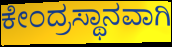
ಕೇಂದ್ರಸ್ಥಾನವಾಗಿ